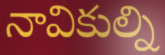
నావికుల్ని